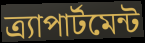
ত্র্যাপার্টমেন্ট